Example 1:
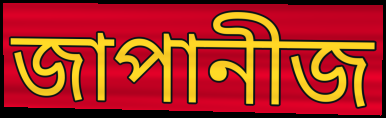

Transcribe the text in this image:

জাপানীজ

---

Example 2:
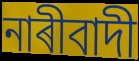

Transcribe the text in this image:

নাৰীবাদী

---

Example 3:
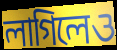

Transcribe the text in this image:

লাগিলেও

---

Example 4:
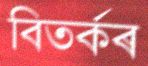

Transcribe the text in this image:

বিতৰ্কৰ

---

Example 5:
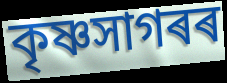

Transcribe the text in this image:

কৃষ্ণসাগৰৰ